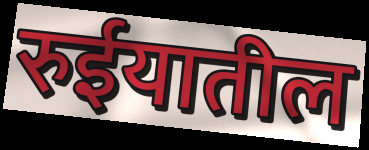
रुईयातील